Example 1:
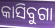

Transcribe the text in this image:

କାସିବୁଗା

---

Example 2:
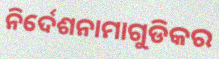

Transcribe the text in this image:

ନିର୍ଦେଶନାମାଗୁଡିକର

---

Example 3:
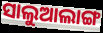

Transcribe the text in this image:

ସାଲୁଆଲାଙ୍ଗ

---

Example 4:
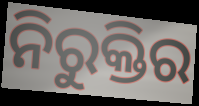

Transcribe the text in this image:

ନିରୁକ୍ତିର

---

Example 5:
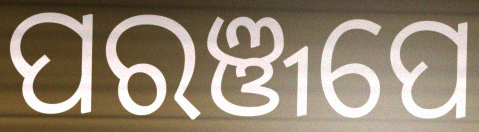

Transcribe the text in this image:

ପରଞ୍ଜପେ